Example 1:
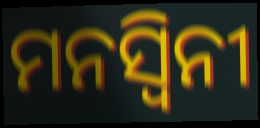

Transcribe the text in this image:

ମନସ୍ୱିନୀ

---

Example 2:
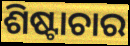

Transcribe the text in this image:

ଶିଷ୍ଟାଚାର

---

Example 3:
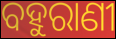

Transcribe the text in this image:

ବହୁରାଣୀ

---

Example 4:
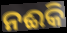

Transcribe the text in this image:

ନଈକି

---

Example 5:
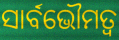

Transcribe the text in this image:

ସାର୍ବଭୌମତ୍ଵ